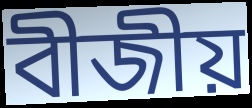
বীজীয়